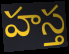
హస్త